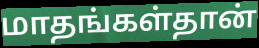
மாதங்கள்தான்